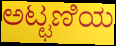
ಅಟ್ಟಣಿಯ